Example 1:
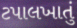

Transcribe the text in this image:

ટપાલખાતું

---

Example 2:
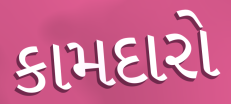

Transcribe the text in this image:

કામદારો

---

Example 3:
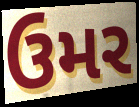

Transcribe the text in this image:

ઉમર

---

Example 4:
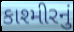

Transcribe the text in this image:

કાશ્મીરનું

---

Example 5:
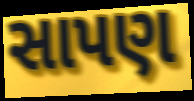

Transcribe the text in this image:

સાપણ